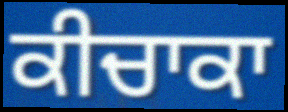
ਕੀਚਾਕਾ